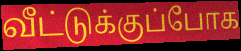
வீட்டுக்குப்போக